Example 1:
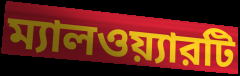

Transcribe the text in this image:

ম্যালওয়্যারটি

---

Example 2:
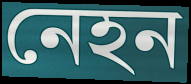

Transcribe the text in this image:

নেহন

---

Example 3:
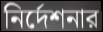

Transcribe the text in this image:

নির্দেশনার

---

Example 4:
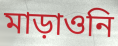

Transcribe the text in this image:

মাড়াওনি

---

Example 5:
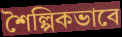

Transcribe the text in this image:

শৈল্পিকভাবে